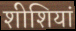
शीशियां